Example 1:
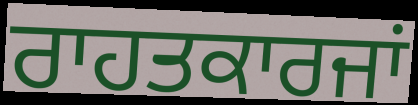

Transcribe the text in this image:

ਰਾਹਤਕਾਰਜਾਂ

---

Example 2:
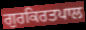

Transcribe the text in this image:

ਗੁਰਕਿਰਤਪਾਲ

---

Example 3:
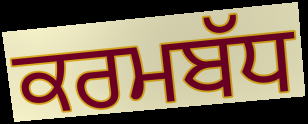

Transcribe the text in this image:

ਕਰਮਬੱਧ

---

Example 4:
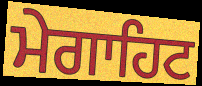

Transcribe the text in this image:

ਮੇਗਾਹਿਟ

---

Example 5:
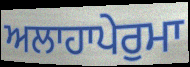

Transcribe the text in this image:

ਅਲਾਹਾਪੇਰੁਮਾ